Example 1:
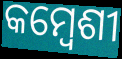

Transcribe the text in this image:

କମ୍ବେଶୀ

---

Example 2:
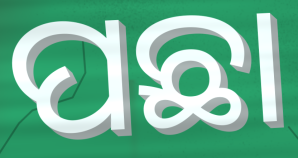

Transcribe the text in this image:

ପଛା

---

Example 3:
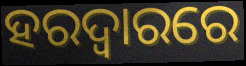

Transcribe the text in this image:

ହରଦ୍ୱାରରେ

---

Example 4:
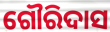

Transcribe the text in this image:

ଗୌରିଦାସ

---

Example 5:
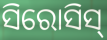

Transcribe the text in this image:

ସିରୋସିସ୍